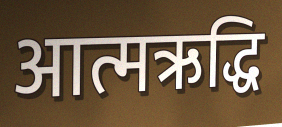
आत्मऋद्धि